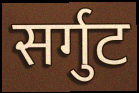
सर्गुट